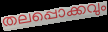
തലപ്പൊക്കവും